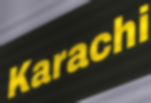
Karachi